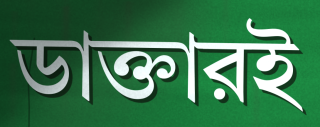
ডাক্তারই